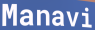
Manavi